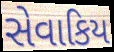
સેવાકિય